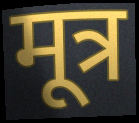
मूत्र